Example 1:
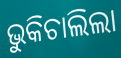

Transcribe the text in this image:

ଭୁକିଚାଲିଲା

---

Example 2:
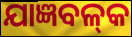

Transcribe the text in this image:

ଯାଜ୍ଞବଳ୍‌କ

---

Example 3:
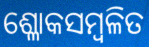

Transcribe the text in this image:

ଶ୍ଳୋକସମ୍ବଳିତ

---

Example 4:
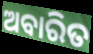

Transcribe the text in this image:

ଅବାରିତ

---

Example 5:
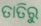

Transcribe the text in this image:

ତାତିରୁ